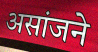
असांजने